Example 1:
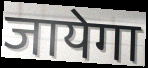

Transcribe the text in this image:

जायेगा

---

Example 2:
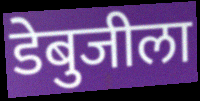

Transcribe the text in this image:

डेबुजीला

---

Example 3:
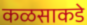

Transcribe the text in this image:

कळसाकडे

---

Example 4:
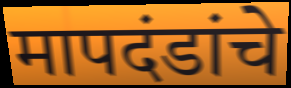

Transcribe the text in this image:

मापदंडांचे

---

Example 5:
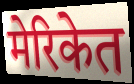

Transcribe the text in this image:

मेरिकेत